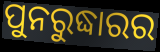
ପୁନରୁଦ୍ଧାରର